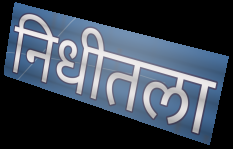
निधीतला